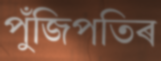
পুঁজিপতিৰ